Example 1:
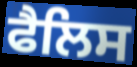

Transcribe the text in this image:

ਫੈਲਿਸ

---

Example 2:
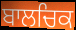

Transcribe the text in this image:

ਬਾਲਚਿਕ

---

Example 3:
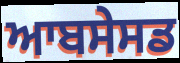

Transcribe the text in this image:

ਆਬਸੇਸਡ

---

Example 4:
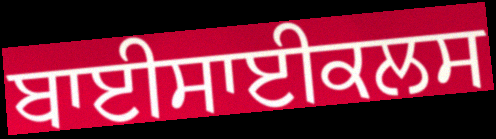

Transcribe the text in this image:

ਬਾਈਸਾਈਕਲਸ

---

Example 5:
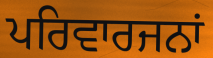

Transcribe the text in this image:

ਪਰਿਵਾਰਜਨਾਂ